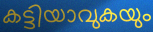
കട്ടിയാവുകയും